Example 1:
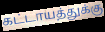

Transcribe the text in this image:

கட்டாயத்துக்கு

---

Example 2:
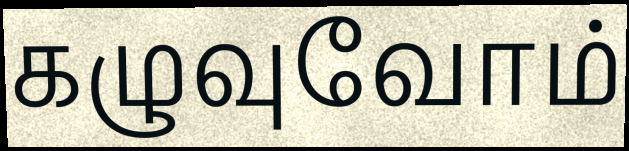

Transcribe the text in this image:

கழுவுவோம்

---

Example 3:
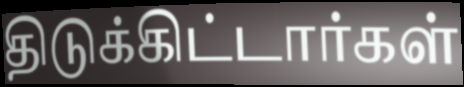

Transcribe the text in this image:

திடுக்கிட்டார்கள்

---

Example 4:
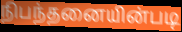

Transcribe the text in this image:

நிபந்தனையின்படி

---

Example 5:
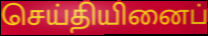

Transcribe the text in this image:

செய்தியினைப்